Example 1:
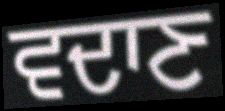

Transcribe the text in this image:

ਵਦਾਣ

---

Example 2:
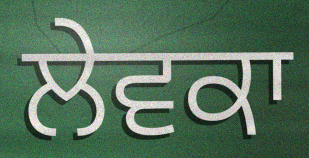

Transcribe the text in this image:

ਲੇਵਕਾ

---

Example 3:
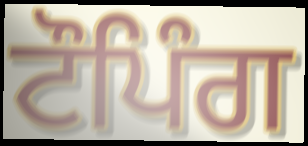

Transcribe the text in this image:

ਟੌਪਿੰਗ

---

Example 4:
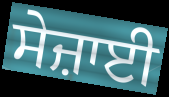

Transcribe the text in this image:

ਸੇਜ਼ਾਈ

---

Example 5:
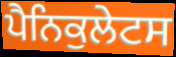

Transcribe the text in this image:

ਪੈਨਿਕੁਲੇਟਸ